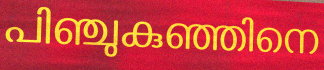
പിഞ്ചുകുഞ്ഞിനെ